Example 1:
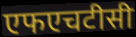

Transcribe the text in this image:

एफएचटीसी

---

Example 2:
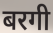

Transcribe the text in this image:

बरगी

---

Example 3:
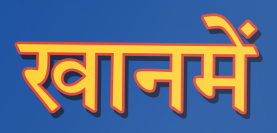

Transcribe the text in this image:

खानमें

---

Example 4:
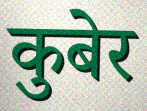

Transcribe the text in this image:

कुबेर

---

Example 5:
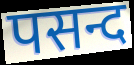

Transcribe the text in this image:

पसन्द